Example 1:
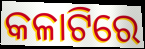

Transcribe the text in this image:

କଳାଟିରେ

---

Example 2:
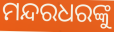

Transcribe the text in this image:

ମନ୍ଦରଧରଙ୍କୁ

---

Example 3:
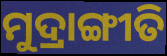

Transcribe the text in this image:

ମୁଦ୍ରାଙ୍ଗୀତି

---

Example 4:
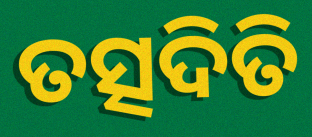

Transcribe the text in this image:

ତତ୍ସଦିତି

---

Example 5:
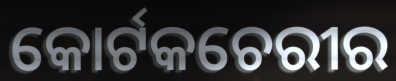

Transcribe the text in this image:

କୋର୍ଟକଚେରୀର